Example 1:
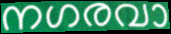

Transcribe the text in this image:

നഗരവാ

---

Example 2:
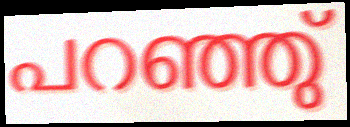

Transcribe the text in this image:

പറഞ്ഞു്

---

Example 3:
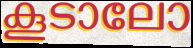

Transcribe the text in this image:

കൂടാലോ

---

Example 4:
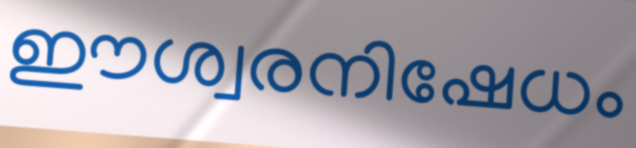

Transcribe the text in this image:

ഈശ്വരനിഷേധം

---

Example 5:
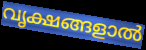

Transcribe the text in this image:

വൃക്ഷങ്ങളാൽ